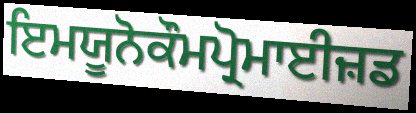
ਇਮਯੂਨੋਕੌਮਪ੍ਰੋਮਾਈਜ਼ਡ